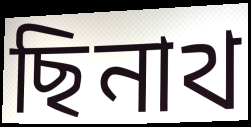
ছিনাথ